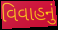
વિવાહનું